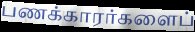
பணக்காரர்களைப்